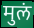
मुलं